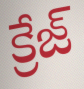
క్రేజ్